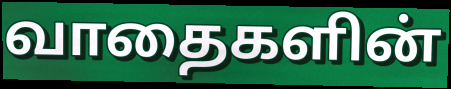
வாதைகளின்